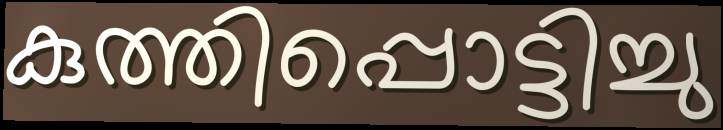
കുത്തിപ്പൊട്ടിച്ചു